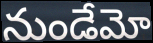
నుండేమో